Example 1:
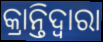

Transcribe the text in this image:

କ୍ରାନ୍ତିଦ୍ୱାରା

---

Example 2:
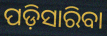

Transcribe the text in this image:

ପଡ଼ିସାରିବା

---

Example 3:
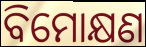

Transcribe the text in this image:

ବିମୋକ୍ଷଣ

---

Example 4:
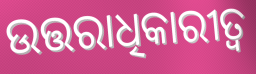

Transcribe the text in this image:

ଉତ୍ତରାଧିକାରୀତ୍ଵ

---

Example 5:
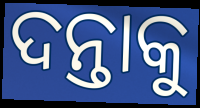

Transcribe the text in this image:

ଦନ୍ତାକୁ